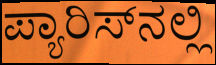
ಪ್ಯಾರಿಸ್‌ನಲ್ಲಿ